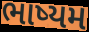
ભાષ્યમ